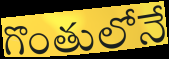
గొంతులోనే